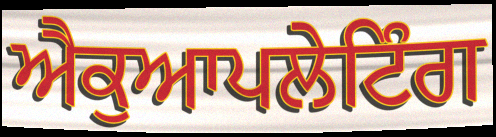
ਐਕੁਆਪਲੇਟਿੰਗ